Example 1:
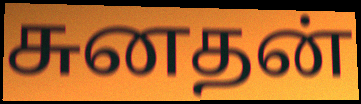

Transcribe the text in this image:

சுனதன்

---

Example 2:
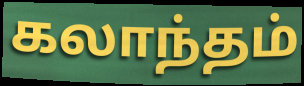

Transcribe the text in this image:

கலாந்தம்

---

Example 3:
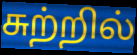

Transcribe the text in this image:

சுற்றில்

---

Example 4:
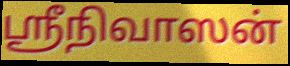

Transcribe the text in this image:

ஸ்ரீநிவாஸன்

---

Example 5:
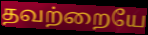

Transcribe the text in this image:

தவற்றையே